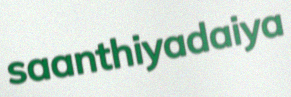
saanthiyadaiya